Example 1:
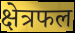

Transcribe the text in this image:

क्षेत्रफल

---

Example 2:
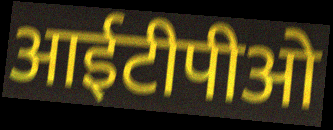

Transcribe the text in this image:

आईटीपीओ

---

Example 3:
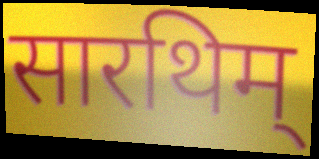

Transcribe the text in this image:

सारथिम्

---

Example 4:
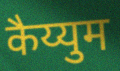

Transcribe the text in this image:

कैय्युम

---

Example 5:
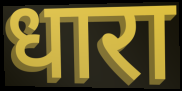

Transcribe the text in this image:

धारा